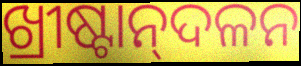
ଖ୍ରୀଷ୍ଟାନ୍‌ଦଳନ